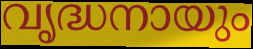
വൃദ്ധനായും